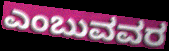
ಎಂಬುವವರ